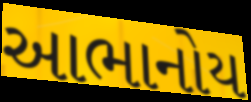
આભાનોય